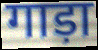
गाड़ा